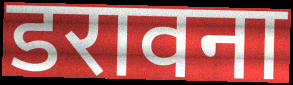
डरावना